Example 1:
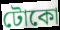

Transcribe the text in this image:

টোকো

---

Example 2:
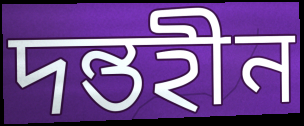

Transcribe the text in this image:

দন্তহীন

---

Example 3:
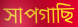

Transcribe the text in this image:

সাপগাছি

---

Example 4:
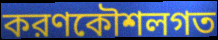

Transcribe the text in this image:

করণকৌশলগত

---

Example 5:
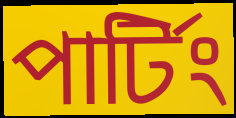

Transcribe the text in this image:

পার্টিং